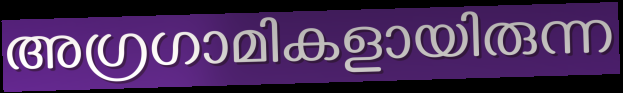
അഗ്രഗാമികളായിരുന്ന